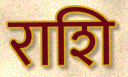
राशि